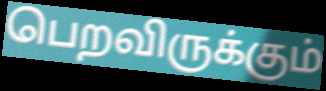
பெறவிருக்கும்